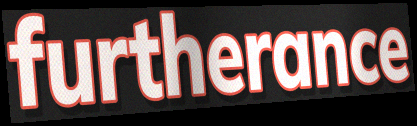
furtherance